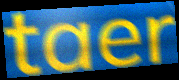
taer